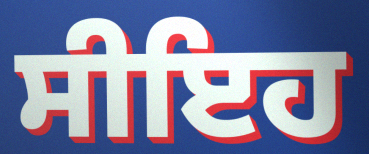
ਸੀਇਹ